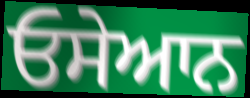
ਓਸੇਆਨ